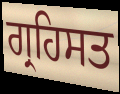
ਗ੍ਰਹਿਸਤ